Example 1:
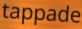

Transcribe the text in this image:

tappade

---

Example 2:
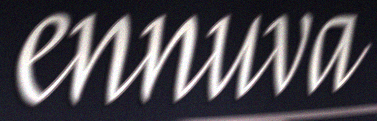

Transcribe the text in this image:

ennuva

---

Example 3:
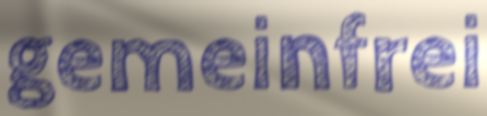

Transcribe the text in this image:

gemeinfrei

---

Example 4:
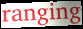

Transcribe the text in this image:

ranging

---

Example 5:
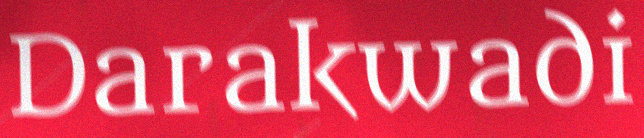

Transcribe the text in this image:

Darakwadi